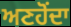
ਅਣਹੋਂਦਾ